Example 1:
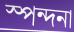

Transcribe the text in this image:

স্পন্দনা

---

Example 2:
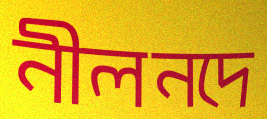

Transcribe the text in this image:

নীলনদে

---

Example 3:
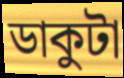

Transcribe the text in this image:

ডাকুটা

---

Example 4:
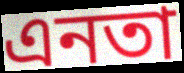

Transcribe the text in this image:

এনতা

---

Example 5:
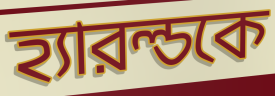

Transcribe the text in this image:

হ্যারল্ডকে